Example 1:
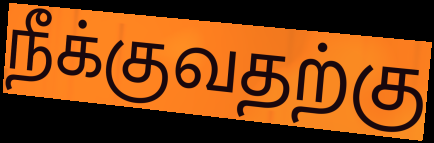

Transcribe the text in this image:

நீக்குவதற்கு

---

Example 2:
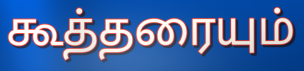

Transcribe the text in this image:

கூத்தரையும்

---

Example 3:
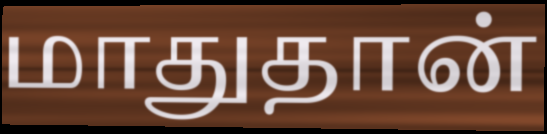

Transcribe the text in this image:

மாதுதான்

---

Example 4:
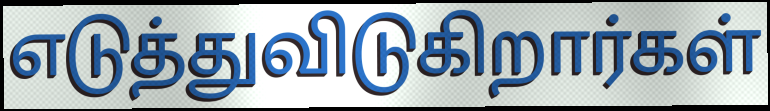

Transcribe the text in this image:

எடுத்துவிடுகிறார்கள்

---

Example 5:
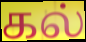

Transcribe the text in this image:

கல்